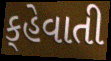
ક્‌હેવાતી